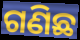
ଗଣିଛ